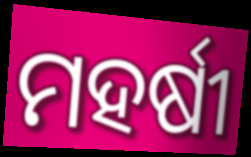
ମହର୍ଷୀ